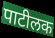
पाटीलक